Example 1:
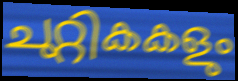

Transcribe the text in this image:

ചുറ്റികകളും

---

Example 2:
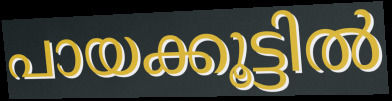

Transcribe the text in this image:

പായക്കൂട്ടിൽ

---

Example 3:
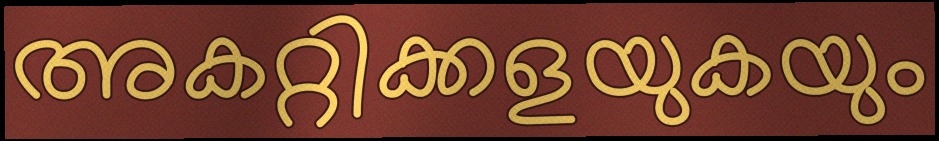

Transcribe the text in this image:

അകറ്റിക്കളയുകയും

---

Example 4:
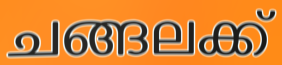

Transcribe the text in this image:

ചങ്ങലക്ക്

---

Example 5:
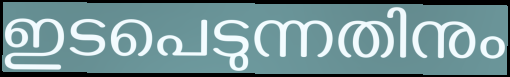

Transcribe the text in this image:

ഇടപെടുന്നതിനും